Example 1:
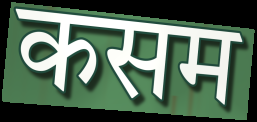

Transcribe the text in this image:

कसम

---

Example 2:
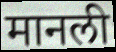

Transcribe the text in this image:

मानली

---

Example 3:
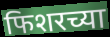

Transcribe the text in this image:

फिशरच्या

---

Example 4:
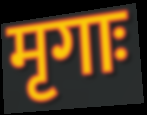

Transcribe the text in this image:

मृगाः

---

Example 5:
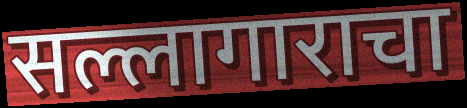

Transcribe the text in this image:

सल्लागाराचा